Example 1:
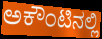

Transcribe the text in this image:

ಅಕೌಂಟಿನಲ್ಲಿ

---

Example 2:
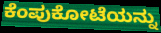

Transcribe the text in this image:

ಕೆಂಪುಕೋಟೆಯನ್ನು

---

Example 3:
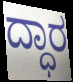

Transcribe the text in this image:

ದ್ಧಾರ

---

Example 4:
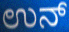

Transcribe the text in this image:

ಉನ್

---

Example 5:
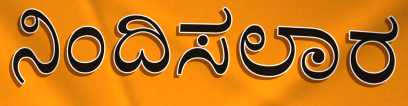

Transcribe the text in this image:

ನಿಂದಿಸಲಾರ